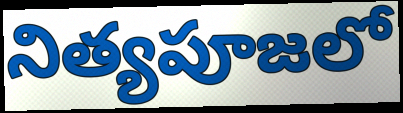
నిత్యపూజలో